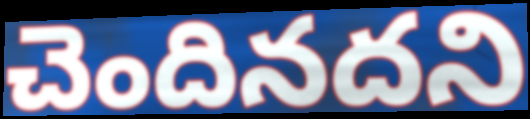
చెందినదని